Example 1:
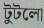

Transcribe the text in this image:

টুটলো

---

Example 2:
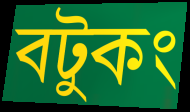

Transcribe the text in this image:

বটুকং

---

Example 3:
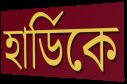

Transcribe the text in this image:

হার্ডিকে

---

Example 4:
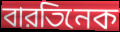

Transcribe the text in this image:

বারতিনেক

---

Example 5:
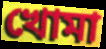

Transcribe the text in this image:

খোমা